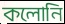
কলোনি